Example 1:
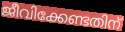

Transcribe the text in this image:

ജീവിക്കേണ്ടതിന്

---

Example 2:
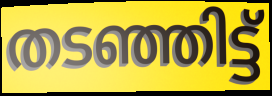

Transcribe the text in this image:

തടഞ്ഞിട്ട്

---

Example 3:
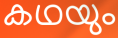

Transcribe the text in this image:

കഥയും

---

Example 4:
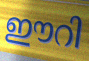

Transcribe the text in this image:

ഈറി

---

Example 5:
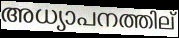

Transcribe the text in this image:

അധ്യാപനത്തില്